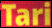
Tari